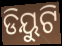
ଡିୟୁଟି